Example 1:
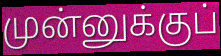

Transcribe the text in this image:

முன்னுக்குப்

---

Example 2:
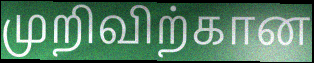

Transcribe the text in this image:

முறிவிற்கான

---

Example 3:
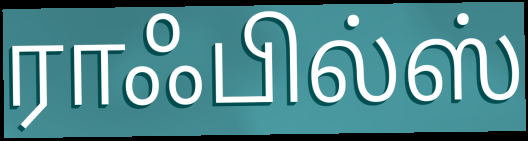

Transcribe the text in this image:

ராஃபில்ஸ்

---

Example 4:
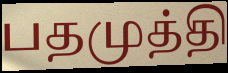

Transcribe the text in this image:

பதமுத்தி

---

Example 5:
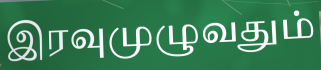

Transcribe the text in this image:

இரவுமுழுவதும்